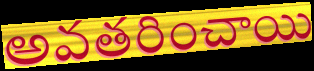
అవతరించాయి